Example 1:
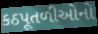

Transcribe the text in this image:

કઠપૂતળીઓનો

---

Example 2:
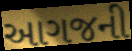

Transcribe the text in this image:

આગજની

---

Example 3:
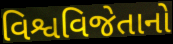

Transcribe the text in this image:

વિશ્વવિજેતાનો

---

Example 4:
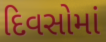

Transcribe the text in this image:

દિવસોમાં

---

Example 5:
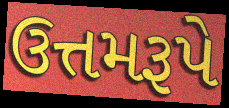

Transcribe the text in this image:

ઉત્તમરૂપે